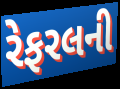
રેફરલની